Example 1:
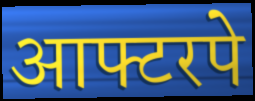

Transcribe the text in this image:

आफ्टरपे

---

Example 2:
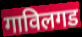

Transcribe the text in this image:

गाविलगड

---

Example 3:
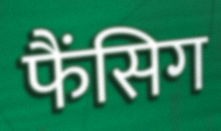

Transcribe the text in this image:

फैंसिग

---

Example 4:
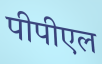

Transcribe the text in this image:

पीपीएल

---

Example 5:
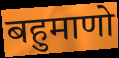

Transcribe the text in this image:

बहुमाणो